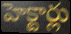
హెక్టార్లు